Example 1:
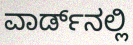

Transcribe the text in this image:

ವಾರ್ಡ್‌ನಲ್ಲಿ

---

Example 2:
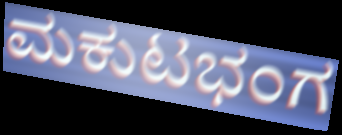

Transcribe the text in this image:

ಮಕುಟಭಂಗ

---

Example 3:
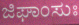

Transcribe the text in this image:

ಜಿಘಾಂಸುಃ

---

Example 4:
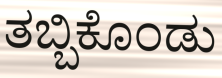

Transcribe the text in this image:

ತಬ್ಬಿಕೊಂಡು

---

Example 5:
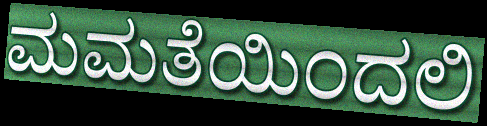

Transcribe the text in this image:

ಮಮತೆಯಿಂದಲಿ